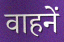
वाहनें